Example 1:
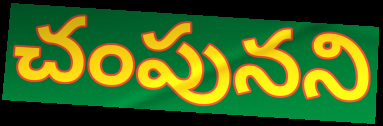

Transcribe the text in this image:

చంపునని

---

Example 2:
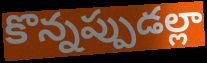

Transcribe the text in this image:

కొన్నప్పుడల్లా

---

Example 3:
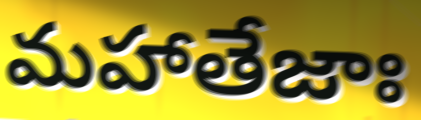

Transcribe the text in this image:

మహాతేజాః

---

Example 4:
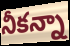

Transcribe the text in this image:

నీకన్నా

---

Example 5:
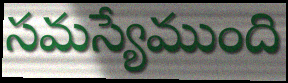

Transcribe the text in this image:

సమస్యేముంది